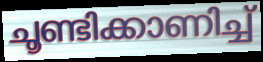
ചൂണ്ടിക്കാണിച്ച്